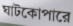
ঘাটকোপারে